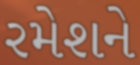
રમેશને